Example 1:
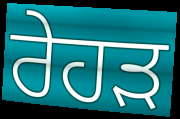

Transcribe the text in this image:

ਰੇਹੜ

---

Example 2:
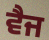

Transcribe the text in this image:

ਵੈਜ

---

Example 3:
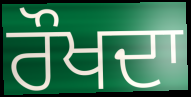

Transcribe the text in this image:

ਰੌਖਦਾ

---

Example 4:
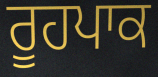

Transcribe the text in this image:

ਰੂਹਪਾਕ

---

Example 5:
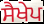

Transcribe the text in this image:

ਸੈਖੇਪ